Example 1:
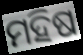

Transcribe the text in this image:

ମହିଷ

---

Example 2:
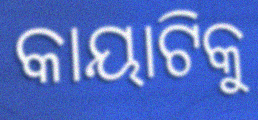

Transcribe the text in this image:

କାୟାଟିକୁ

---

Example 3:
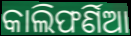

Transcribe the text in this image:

କାଲିଫର୍ଣିଆ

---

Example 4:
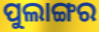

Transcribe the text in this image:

ପୁଲାଙ୍ଗର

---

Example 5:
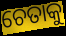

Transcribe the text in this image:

ଚେତାକୁ